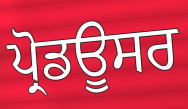
ਪ੍ਰੋਡਊਸਰ